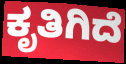
ಕೃತಿಗಿದೆ